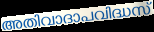
അതിവാദാപവിദ്ധസ്